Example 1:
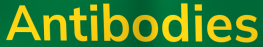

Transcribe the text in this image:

Antibodies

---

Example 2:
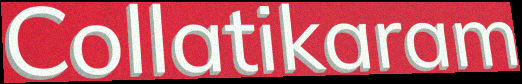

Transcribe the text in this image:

Collatikaram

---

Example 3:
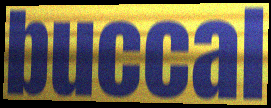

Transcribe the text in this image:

buccal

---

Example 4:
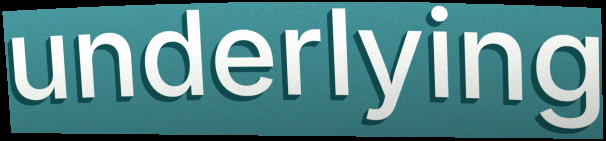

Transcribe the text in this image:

underlying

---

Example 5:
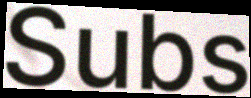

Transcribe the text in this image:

Subs